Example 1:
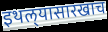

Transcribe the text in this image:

इथल्यासारखाच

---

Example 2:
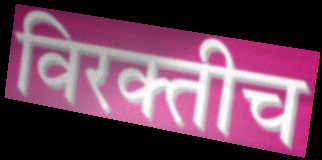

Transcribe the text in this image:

विरक्तीच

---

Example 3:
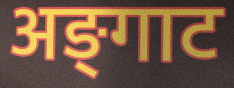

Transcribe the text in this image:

अङ्गाट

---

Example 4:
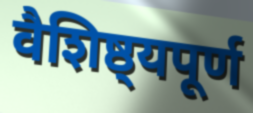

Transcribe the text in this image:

वैशिष्ठ्यपूर्ण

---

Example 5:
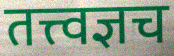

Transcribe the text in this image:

तत्त्वज्ञच